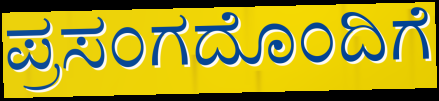
ಪ್ರಸಂಗದೊಂದಿಗೆ